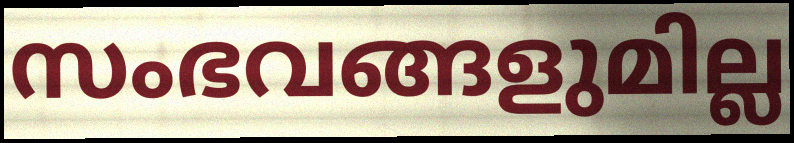
സംഭവങ്ങളുമില്ല